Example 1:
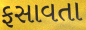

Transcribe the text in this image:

ફસાવતા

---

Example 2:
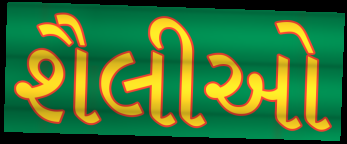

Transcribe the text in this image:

શૈલીઓ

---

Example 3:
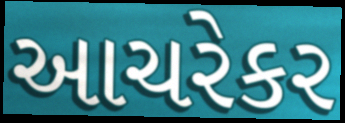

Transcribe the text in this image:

આચરેકર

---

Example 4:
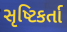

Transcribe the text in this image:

સૃષ્ટિકર્તા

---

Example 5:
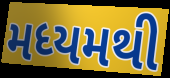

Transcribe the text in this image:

મધ્યમથી